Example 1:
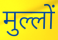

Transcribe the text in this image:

मुल्लों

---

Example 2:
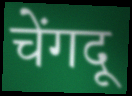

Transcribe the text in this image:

चेंगदू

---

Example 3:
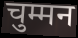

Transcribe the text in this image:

चुम्मन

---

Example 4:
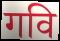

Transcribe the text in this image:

गवि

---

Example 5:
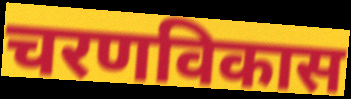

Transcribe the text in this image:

चरणविकास